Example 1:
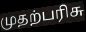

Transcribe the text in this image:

முதற்பரிசு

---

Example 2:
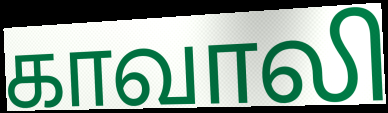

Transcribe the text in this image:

காவாலி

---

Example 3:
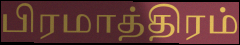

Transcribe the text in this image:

பிரமாத்திரம்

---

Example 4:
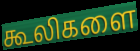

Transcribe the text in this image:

கூலிகளை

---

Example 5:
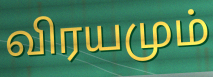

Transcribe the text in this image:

விரயமும்